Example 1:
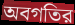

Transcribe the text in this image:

অবগতির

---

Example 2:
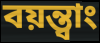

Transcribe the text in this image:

বয়ন্ত্বাং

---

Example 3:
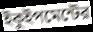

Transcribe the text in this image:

ইকুইপমেন্টের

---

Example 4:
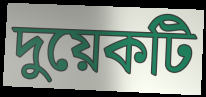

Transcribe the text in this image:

দুয়েকটি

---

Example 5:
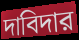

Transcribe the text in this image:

দাবিদার